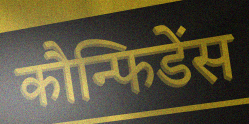
कौन्फिडेंस